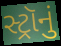
સ્ટ્રૉનું